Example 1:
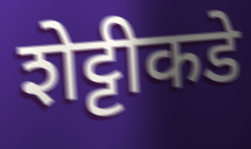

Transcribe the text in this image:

शेट्टीकडे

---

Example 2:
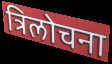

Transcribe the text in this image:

त्रिलोचना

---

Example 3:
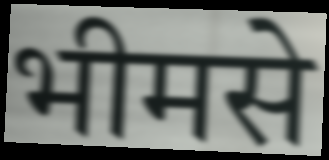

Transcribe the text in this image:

भीमसे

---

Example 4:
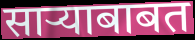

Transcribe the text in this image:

साऱ्याबाबत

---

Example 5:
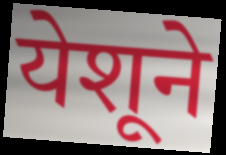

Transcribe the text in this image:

येशूने